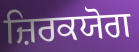
ਜ਼ਿਰਕਯੋਗ